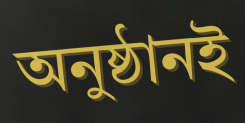
অনুষ্ঠানই